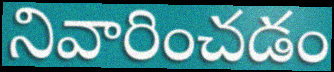
నివారించడం